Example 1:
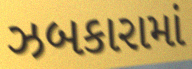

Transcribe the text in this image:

ઝબકારામાં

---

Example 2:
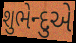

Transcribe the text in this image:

શુભેન્દુએ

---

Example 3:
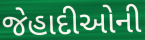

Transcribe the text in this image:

જેહાદીઓની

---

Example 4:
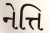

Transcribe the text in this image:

નેત્તિ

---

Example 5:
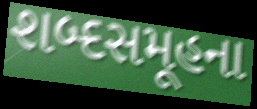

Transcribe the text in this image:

શબ્દસમૂહના